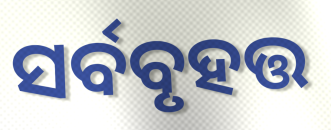
ସର୍ବବୃହତ୍ତ